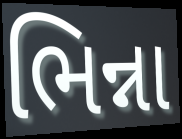
ભિન્ના